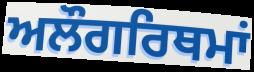
ਅਲੌਗਰਿਥਮਾਂ